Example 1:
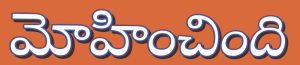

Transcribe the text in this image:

మోహించింది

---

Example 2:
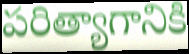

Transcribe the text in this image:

పరిత్యాగానికి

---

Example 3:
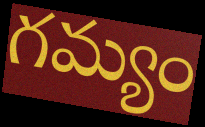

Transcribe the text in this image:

గమ్యం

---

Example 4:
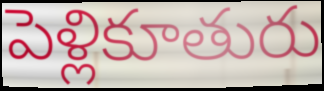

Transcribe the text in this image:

పెళ్లికూతురు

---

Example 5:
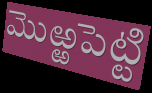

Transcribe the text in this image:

మొఱ్ఱపెట్టి